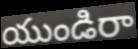
యుండిరా